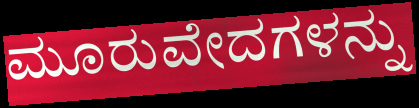
ಮೂರುವೇದಗಳನ್ನು